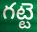
గట్టె